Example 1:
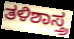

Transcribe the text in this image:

ತಳಿಶಾಸ್ತ್ರ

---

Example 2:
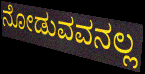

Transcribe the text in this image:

ನೋಡುವವನಲ್ಲ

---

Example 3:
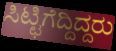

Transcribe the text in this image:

ಸಿಟ್ಟಿಗೆದ್ದಿದ್ದರು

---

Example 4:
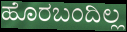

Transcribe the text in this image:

ಹೊರಬಂದಿಲ್ಲ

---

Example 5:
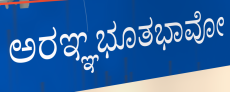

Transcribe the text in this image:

ಅರಞ್ಞಭೂತಭಾವೋ